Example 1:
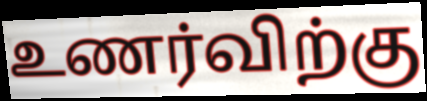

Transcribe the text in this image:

உணர்விற்கு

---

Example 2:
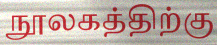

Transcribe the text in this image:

நூலகத்திற்கு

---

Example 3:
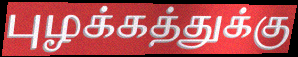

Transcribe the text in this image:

புழக்கத்துக்கு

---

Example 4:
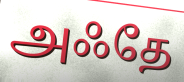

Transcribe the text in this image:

அஃதே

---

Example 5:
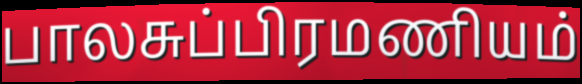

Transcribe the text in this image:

பாலசுப்பிரமணியம்